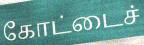
கோட்டைச்